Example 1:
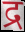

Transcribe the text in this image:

द्र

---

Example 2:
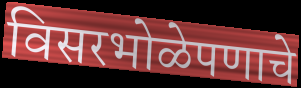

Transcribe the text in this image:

विसरभोळेपणाचे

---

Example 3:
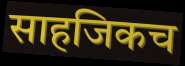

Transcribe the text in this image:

साहजिकच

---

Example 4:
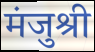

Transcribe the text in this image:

मंजुश्री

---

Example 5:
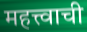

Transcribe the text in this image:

महत्त्वाची